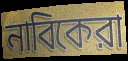
নাবিকেরা